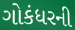
ગોકંધરની